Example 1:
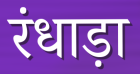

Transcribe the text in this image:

रंधाड़ा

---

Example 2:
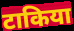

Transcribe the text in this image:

टाकिया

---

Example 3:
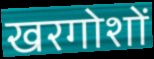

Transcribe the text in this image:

खरगोशों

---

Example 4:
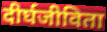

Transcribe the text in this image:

दीर्घजीविता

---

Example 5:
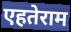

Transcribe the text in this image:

एहतेराम